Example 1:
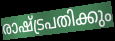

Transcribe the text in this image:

രാഷ്ട്രപതിക്കും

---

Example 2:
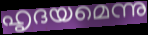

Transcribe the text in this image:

ഹൃദയമെന്നു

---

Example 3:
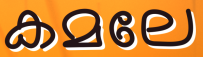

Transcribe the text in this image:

കമലേ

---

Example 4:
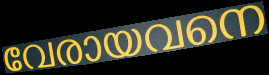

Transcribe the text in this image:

വേരായവനെ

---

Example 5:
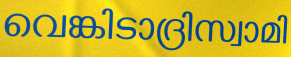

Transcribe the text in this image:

വെങ്കിടാദ്രിസ്വാമി